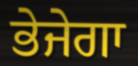
ਭੇਜੇਗਾ